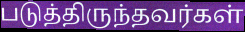
படுத்திருந்தவர்கள்